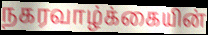
நகரவாழ்க்கையின்